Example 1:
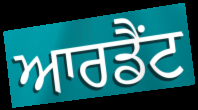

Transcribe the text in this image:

ਆਰਡੈਂਟ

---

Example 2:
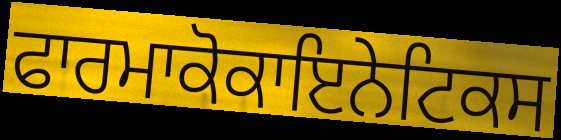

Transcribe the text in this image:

ਫਾਰਮਾਕੋਕਾਇਨੇਟਿਕਸ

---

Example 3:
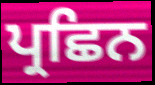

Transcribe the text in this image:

ਪ੍ਰਛਿਨ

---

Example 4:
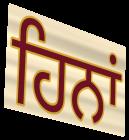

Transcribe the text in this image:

ਹਿਨਾਂ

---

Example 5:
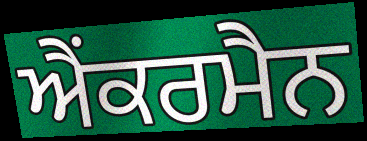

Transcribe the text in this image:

ਐਂਕਰਮੈਨ